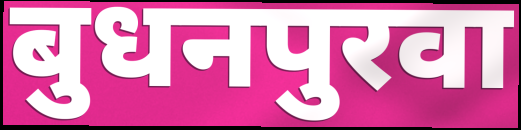
बुधनपुरवा